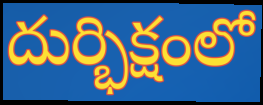
దుర్భిక్షంలో